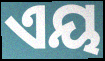
ଏୟ